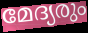
മേദ്യരും